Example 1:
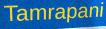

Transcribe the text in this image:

Tamrapani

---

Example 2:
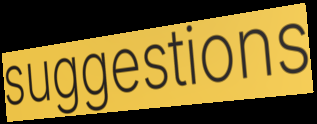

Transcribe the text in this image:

suggestions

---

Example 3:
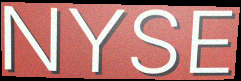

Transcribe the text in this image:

NYSE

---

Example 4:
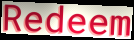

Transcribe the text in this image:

Redeem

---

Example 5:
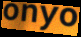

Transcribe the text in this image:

onyo